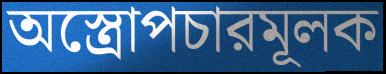
অস্ত্রোপচারমূলক